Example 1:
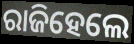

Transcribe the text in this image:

ରାଜିହେଲେ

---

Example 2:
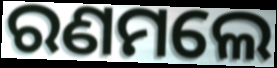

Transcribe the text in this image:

ରଣମଲେ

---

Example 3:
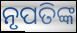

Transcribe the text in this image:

ନୃପତିଙ୍କ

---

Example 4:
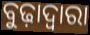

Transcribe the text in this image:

ବୁଢ଼ାଦ୍ୱାରା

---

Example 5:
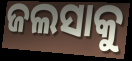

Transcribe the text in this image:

ଜଲସାକୁ